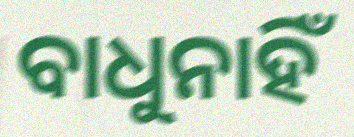
ବାଧୁନାହିଁ